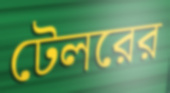
টেলরের